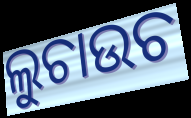
ଲୁଚାଉଚ